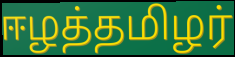
ஈழத்தமிழர்